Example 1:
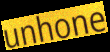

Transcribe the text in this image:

unhone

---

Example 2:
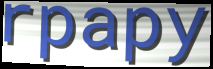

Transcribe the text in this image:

rpapy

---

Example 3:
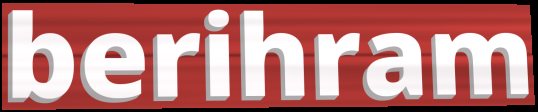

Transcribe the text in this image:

berihram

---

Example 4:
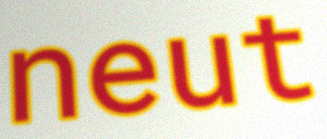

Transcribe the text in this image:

neut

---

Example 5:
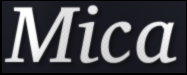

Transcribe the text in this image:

Mica